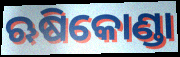
ଋଷିକୋଣ୍ଡା